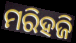
ମରିହଜି